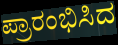
ಪ್ರಾರಂಭಿಸಿದ